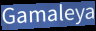
Gamaleya